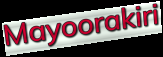
Mayoorakiri